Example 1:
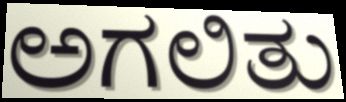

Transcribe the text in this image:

ಅಗಲಿತು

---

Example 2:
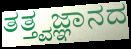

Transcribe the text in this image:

ತತ್ತ್ವಜ್ಞಾನದ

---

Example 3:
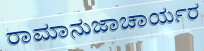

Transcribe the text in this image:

ರಾಮಾನುಜಾಚಾರ್ಯರ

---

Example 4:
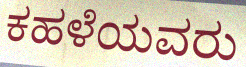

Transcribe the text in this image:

ಕಹಳೆಯವರು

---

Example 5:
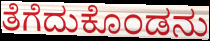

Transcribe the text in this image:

ತೆಗೆದುಕೊಂಡನು